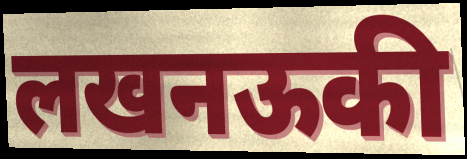
लखनऊकी